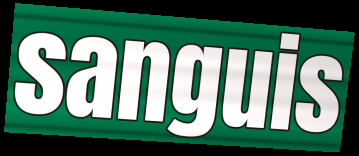
sanguis